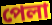
পেলা